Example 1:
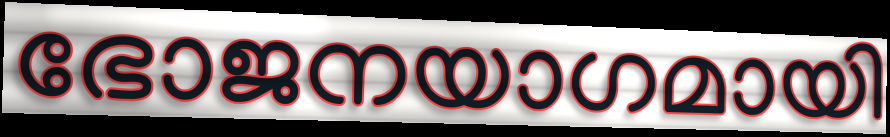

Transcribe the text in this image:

ഭോജനയാഗമായി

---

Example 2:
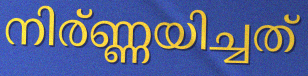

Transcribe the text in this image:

നിര്ണ്ണയിച്ചത്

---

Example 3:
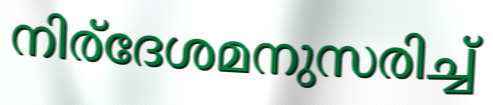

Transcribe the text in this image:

നിര്ദേശമനുസരിച്ച്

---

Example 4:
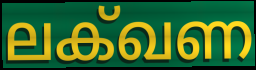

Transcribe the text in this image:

ലക്ഖണ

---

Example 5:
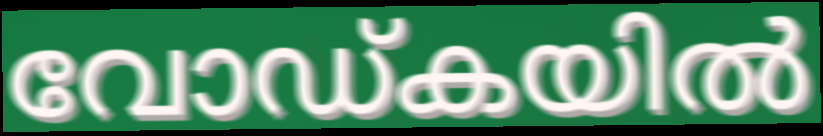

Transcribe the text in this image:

വോഡ്കയിൽ